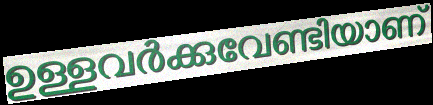
ഉള്ളവർക്കുവേണ്ടിയാണ്